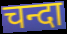
चन्दा